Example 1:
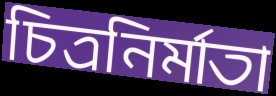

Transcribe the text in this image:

চিত্ৰনিৰ্মাতা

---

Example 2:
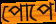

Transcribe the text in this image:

পোপে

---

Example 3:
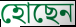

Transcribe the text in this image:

হোছেন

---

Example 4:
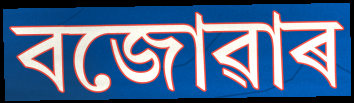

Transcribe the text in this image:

বজোৱাৰ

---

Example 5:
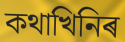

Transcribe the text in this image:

কথাখিনিৰ